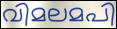
വിമലമപി